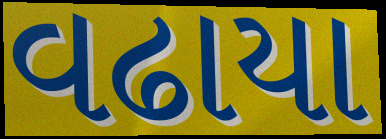
વઢાયા